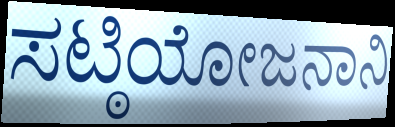
ಸಟ್ಠಿಯೋಜನಾನಿ